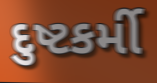
દુષ્ટકર્મી